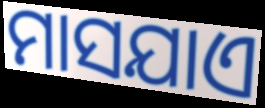
ମାସଯାଏ